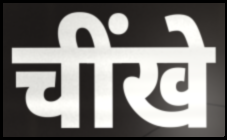
चींखे